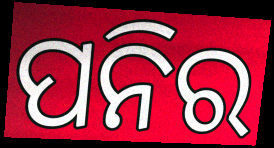
ପନିର